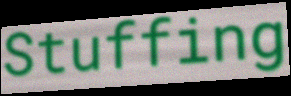
Stuffing